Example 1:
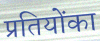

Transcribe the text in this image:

प्रतियोंका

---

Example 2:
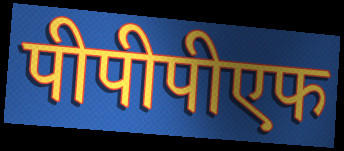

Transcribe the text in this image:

पीपीपीएफ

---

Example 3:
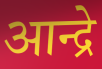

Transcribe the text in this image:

आन्द्रे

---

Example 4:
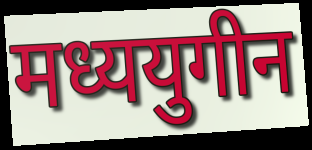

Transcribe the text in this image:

मध्ययुगीन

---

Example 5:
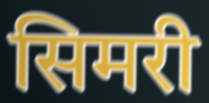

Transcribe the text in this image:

सिमरी